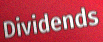
Dividends